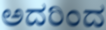
ಅದರಿಂದ